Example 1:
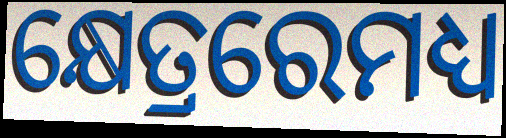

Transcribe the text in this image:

କ୍ଷେତ୍ରରେମଧ୍ୟ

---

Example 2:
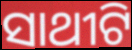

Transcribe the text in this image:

ସାଥୀଟି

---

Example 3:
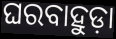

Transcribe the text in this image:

ଘରବାହୁଡ଼ା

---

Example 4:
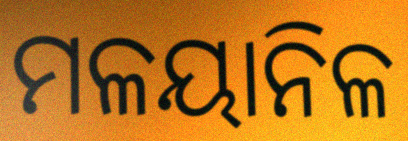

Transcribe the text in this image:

ମଳୟାନିଳ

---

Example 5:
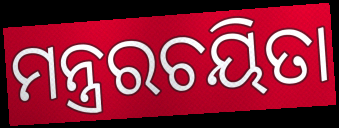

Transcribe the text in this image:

ମନ୍ତ୍ରରଚୟିତା